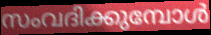
സംവദിക്കുമ്പോൾ